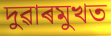
দুৱাৰমুখত